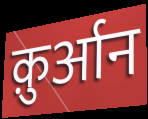
क़ुर्आन